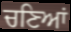
ਚਣਿਆਂ